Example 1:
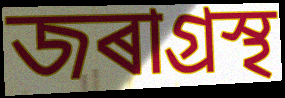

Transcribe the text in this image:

জৰাগ্ৰস্থ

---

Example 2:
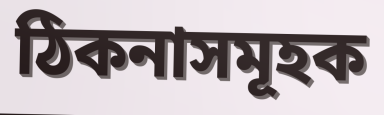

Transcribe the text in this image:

ঠিকনাসমূহক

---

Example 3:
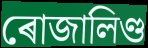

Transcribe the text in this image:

ৰোজালিণ্ড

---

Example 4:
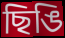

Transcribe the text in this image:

ছিঙি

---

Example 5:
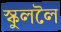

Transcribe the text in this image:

স্কুললৈ